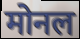
मोनल